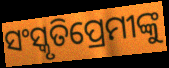
ସଂସ୍କୃତିପ୍ରେମୀଙ୍କୁ